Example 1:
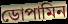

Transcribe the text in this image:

ডোপামিন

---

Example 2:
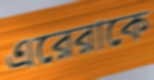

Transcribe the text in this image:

এরেরাকে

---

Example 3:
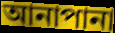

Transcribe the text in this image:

আনাপানা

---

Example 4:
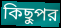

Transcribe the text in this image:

কিছুপর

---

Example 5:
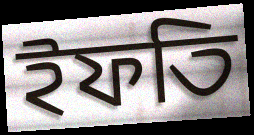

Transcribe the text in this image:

ইফতি